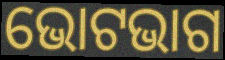
ଭୋଟଭାଗ